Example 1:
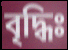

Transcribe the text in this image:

বৃদ্ধিঃ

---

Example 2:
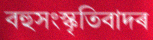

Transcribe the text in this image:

বহুসংস্কৃতিবাদৰ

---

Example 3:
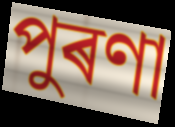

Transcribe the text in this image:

পুৰণা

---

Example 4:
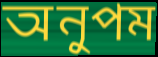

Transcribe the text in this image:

অনুপম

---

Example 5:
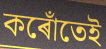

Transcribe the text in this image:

কৰোঁতেই